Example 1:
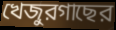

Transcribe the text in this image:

খেজুরগাছের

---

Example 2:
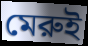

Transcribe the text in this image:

মেরুই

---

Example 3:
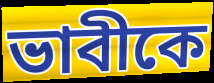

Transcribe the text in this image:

ভাবীকে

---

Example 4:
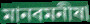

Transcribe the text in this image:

মানবমনীষা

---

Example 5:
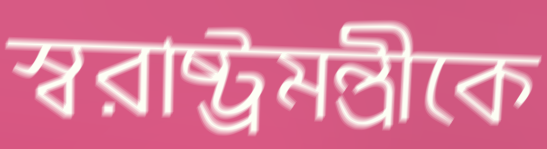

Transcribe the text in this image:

স্বরাষ্ট্রমন্ত্রীকে